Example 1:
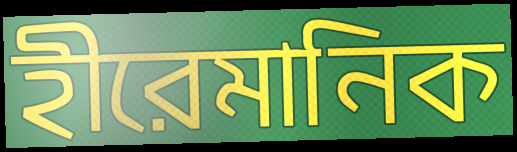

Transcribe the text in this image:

হীরেমানিক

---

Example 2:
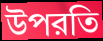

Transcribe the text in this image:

উপরতি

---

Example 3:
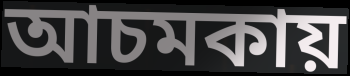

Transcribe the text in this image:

আচমকায়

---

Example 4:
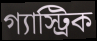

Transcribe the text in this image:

গ্যাস্ট্রিক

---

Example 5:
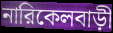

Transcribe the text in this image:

নারিকেলবাড়ী